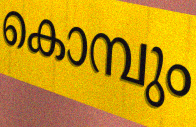
കൊമ്പും